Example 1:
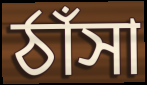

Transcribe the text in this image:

ঠাঁসা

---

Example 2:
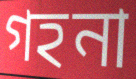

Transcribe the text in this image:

গহনা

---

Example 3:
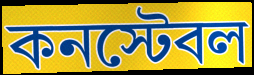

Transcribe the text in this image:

কনস্টেবল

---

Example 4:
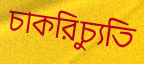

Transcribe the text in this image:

চাকরিচ্যুতি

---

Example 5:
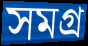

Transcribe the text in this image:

সমগ্র